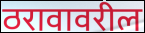
ठरावावरील